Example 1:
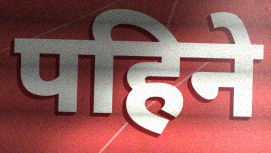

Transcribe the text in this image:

पहिने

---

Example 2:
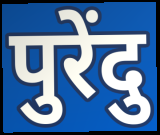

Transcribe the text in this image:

पुरेंदु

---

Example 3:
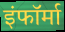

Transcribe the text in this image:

इंफॉर्मा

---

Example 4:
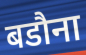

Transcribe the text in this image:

बडौना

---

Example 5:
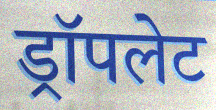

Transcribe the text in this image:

ड्रॉपलेट